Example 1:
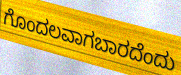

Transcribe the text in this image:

ಗೊಂದಲವಾಗಬಾರದೆಂದು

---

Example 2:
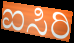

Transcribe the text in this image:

ಐಸಿರಿ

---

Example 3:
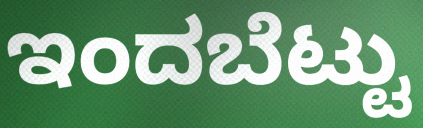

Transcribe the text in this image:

ಇಂದಬೆಟ್ಟು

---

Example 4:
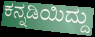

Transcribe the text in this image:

ಕನ್ನಡಿಯಿದ್ದು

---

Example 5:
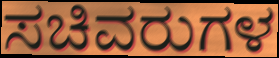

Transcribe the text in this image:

ಸಚಿವರುಗಳ